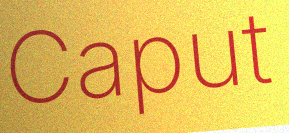
Caput